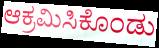
ಆಕ್ರಮಿಸಿಕೊಂಡು